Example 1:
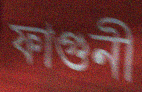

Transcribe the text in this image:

ফাগুনী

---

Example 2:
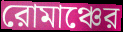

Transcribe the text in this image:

রোমাঞ্চের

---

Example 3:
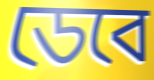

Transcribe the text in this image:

ডেবে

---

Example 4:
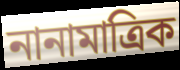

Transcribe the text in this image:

নানামাত্রিক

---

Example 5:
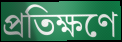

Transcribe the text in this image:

প্রতিক্ষণে